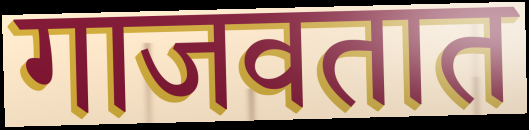
गाजवतात